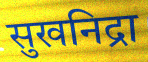
सुखनिद्रा